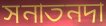
সনাতনদা